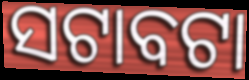
ସଟାବଟା